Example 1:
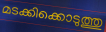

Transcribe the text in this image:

മടക്കിക്കൊടുത്തു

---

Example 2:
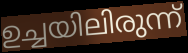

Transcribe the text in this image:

ഉച്ചയിലിരുന്ന്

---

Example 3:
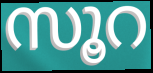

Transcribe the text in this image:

സൂറ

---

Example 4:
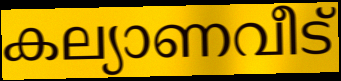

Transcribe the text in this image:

കല്യാണവീട്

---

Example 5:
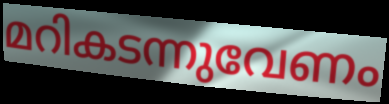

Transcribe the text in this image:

മറികടന്നുവേണം